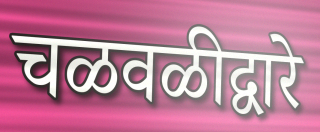
चळवळीद्वारे